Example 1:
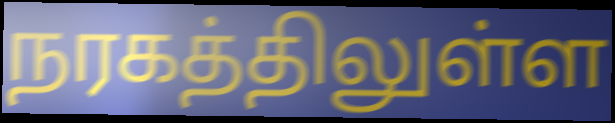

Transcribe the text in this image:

நரகத்திலுள்ள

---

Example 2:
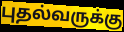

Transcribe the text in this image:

புதல்வருக்கு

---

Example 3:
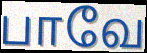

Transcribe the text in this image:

பாவே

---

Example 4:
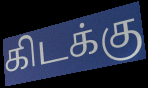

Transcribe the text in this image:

கிடக்கு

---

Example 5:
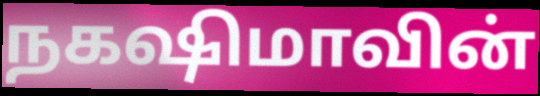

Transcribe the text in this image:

நகஷிமாவின்